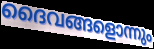
ദൈവങ്ങളൊന്നും